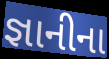
જ્ઞાનીના